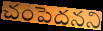
చంపెదనని